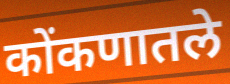
कोंकणातले